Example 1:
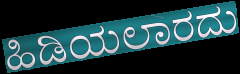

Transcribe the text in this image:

ಹಿಡಿಯಲಾರದು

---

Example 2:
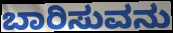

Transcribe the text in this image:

ಬಾರಿಸುವನು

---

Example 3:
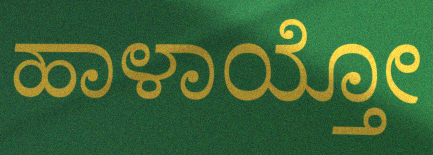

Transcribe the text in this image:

ಹಾಳಾಯ್ತೋ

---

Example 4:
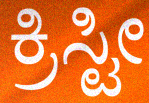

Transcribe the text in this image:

ಕ್ರಿಸ್ಟೀ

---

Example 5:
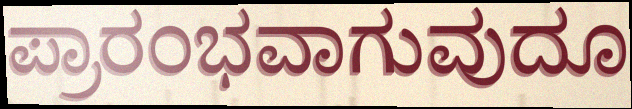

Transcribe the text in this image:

ಪ್ರಾರಂಭವಾಗುವುದೂ